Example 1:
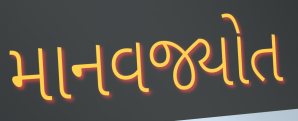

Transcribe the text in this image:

માનવજ્યોત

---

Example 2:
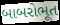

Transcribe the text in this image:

બાબરોભૂત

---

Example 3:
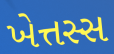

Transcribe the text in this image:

ખેત્તસ્સ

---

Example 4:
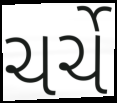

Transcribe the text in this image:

ચર્ચે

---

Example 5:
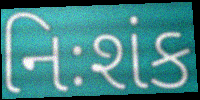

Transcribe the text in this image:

નિઃશંક